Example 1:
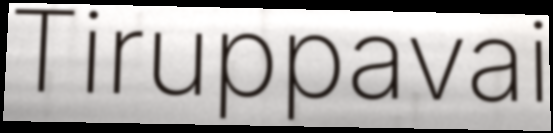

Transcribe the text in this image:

Tiruppavai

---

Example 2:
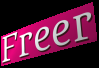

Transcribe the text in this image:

Freer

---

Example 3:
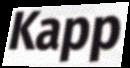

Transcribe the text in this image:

Kapp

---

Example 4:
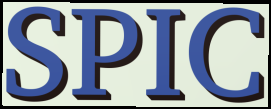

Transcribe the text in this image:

SPIC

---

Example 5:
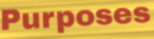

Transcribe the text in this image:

Purposes